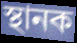
স্থানক